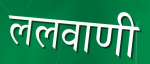
ललवाणी